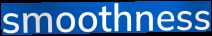
smoothness